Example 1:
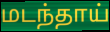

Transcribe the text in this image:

மடந்தாய்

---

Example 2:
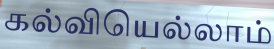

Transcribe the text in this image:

கல்வியெல்லாம்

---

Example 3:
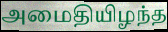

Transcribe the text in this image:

அமைதியிழந்த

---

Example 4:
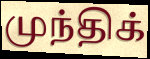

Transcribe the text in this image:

முந்திக்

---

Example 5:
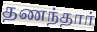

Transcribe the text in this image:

தணந்தார்